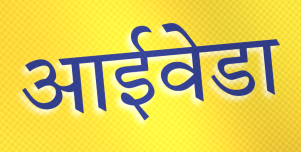
आईवेडा